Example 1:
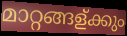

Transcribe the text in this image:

മാറ്റങ്ങള്ക്കും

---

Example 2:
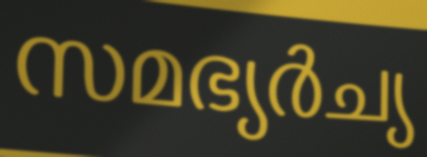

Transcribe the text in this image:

സമഭ്യർച്യ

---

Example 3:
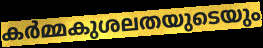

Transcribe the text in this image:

കർമ്മകുശലതയുടെയും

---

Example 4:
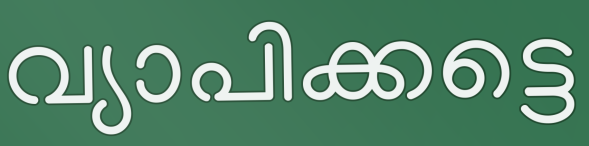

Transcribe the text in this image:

വ്യാപിക്കട്ടെ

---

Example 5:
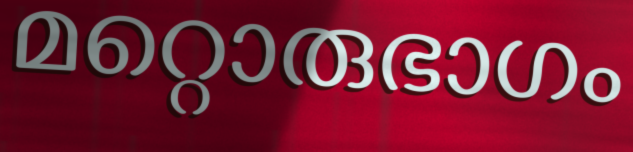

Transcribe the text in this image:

മറ്റൊരുഭാഗം